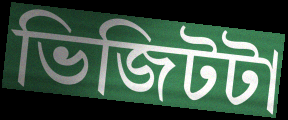
ভিজিটটা